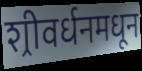
श्रीवर्धनमधून